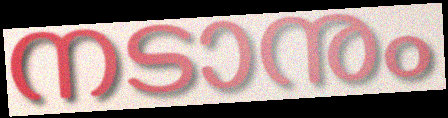
നടാനും